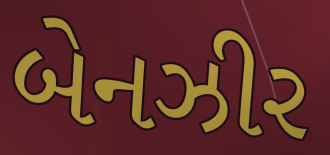
બેનઝીર